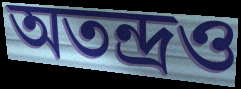
অতন্দ্রও